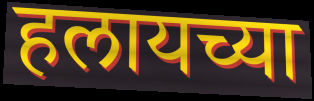
हलायच्या